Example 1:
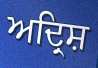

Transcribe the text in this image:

ਅਦ੍ਰਿਸ਼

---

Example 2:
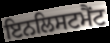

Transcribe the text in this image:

ਇਨਲਿਸਟਮੈਂਟ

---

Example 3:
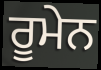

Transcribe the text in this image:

ਰੂਮੇਨ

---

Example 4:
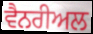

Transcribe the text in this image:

ਵੈਨਰੀਅਲ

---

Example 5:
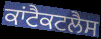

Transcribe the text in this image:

ਕਾਂਟੈਕਟਲੈਸ